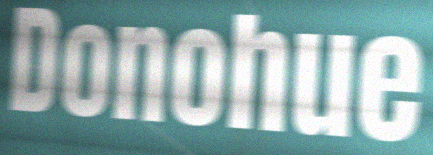
Donohue